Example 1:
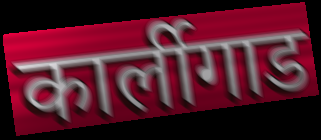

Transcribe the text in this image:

कार्लीगाड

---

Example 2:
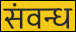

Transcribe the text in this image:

संवन्ध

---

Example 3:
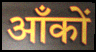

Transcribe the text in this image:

आँकों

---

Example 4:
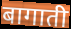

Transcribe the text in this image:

बागाती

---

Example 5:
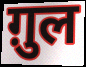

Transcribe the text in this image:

ग़ुल